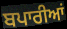
ਬਪਾਰੀਆਂ